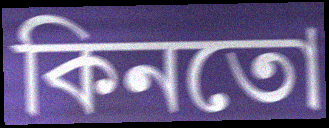
কিনতো